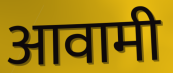
आवामी